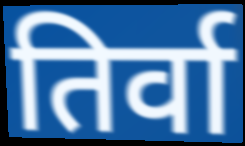
तिर्वा